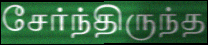
சேர்ந்திருந்த